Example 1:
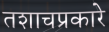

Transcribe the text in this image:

तशाचप्रकारे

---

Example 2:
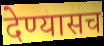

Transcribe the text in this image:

देण्यासच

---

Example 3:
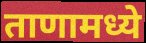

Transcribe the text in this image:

ताणामध्ये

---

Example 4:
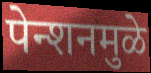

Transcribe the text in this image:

पेन्शनमुळे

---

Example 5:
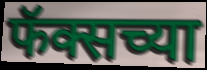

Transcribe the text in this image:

फॅक्सच्या